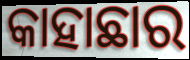
କାହାଛାର